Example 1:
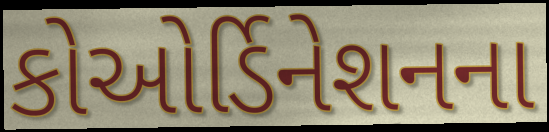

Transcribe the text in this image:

કોઓર્ડિનેશનના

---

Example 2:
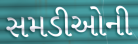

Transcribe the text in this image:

સમડીઓની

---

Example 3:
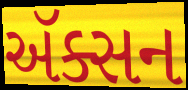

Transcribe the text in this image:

ઍક્સન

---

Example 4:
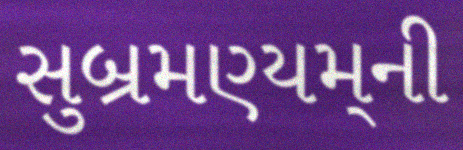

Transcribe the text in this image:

સુબ્રમણ્યમ્‌ની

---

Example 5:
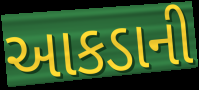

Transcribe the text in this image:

આકડાની